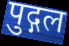
पुद्गल